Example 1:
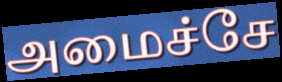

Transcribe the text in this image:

அமைச்சே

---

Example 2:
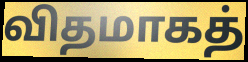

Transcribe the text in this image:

விதமாகத்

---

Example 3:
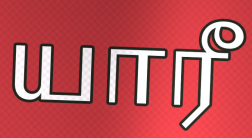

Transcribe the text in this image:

யாரீ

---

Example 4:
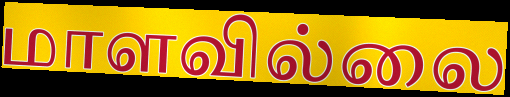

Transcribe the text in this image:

மாளவில்லை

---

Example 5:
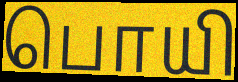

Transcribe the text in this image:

பொயி